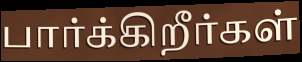
பார்க்கிறீர்கள்